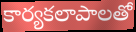
కార్యకలాపాలతో